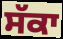
ਸੱਕਾ